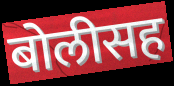
बोलीसह